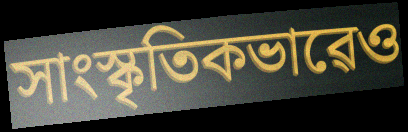
সাংস্কৃতিকভাৱেও